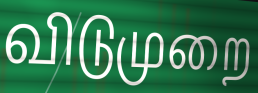
விடுமுறை